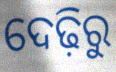
ଦେଢ଼ିରୁ